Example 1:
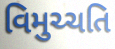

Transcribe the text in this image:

વિમુચ્ચતિ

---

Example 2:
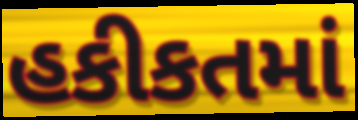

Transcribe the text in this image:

હકીકતમાં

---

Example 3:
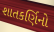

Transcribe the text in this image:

શાતકર્ણિનો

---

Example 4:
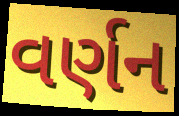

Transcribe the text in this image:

વર્ણન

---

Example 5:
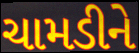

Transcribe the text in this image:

ચામડીને